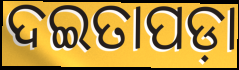
ଦଇତାପଡ଼ା